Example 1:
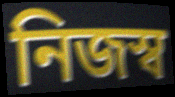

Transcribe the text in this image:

নিজস্ব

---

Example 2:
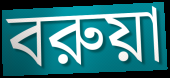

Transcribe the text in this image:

বরুয়া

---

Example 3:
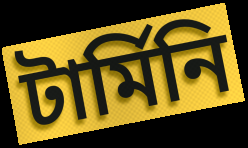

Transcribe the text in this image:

টার্মিনি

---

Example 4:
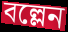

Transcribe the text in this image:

বল্লেন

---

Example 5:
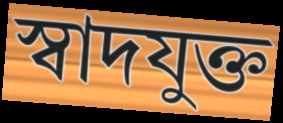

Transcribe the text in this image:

স্বাদযুক্ত